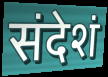
संदेशं